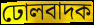
ঢোলবাদক